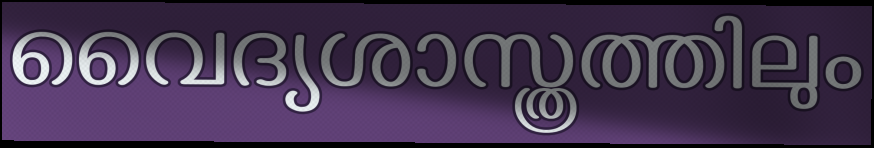
വൈദ്യശാസ്ത്രത്തിലും